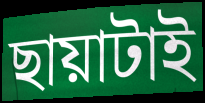
ছায়াটাই